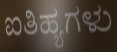
ಐತಿಹ್ಯಗಳು